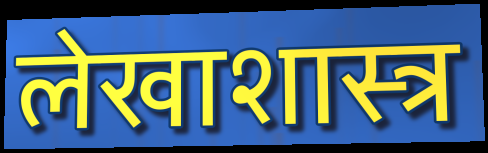
लेखाशास्त्र